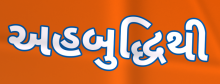
અહબુદ્ધિથી